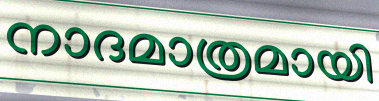
നാദമാത്രമായി